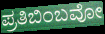
ಪ್ರತಿಬಿಂಬವೋ